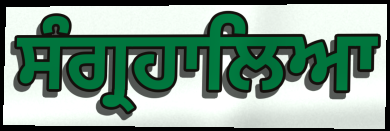
ਸੰਗ੍ਰਹਾਲਿਆ